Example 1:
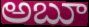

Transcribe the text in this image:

అబూ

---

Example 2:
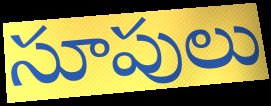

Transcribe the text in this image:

సూపులు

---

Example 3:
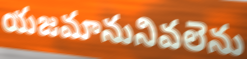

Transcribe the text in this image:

యజమానునివలెను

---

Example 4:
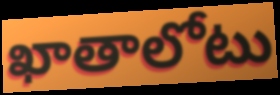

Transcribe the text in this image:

ఖాతాలోటు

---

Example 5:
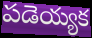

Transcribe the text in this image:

పడెయ్యక